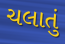
ચલાતું